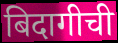
बिदागीची